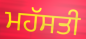
ਮਹੱਸਤੀ